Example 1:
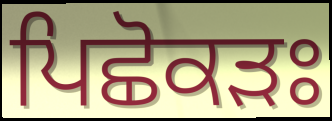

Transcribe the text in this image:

ਪਿਛੋਕੜਃ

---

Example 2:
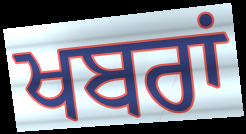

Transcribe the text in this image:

ਖਬਰਾਂ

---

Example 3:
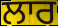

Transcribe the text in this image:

ਲਾਰ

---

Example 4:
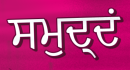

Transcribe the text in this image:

ਸਮੁਦ੍ਦਂ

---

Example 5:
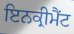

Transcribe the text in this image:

ਇਨਕ੍ਰੀਮੈਂਟ